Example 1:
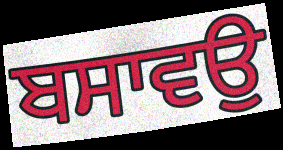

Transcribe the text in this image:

ਬਸਾਵਉ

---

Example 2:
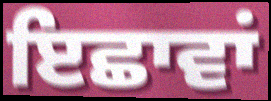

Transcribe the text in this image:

ਇਛਾਵਾਂ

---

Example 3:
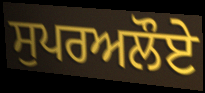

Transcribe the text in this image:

ਸੁਪਰਅਲੌਏ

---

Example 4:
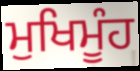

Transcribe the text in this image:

ਮੁਖਿਮੂੰਹ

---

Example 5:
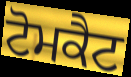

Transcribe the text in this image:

ਟੋਮਕੈਟ